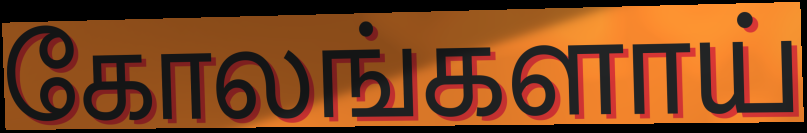
கோலங்களாய்